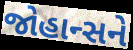
જોહાન્સને